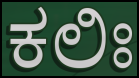
ಕಲಿಃ